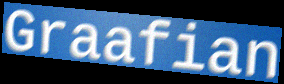
Graafian